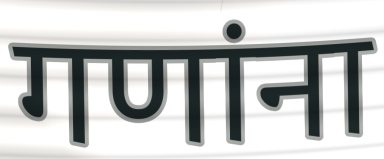
गणांना